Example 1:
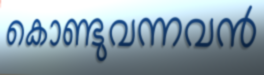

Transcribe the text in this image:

കൊണ്ടുവന്നവൻ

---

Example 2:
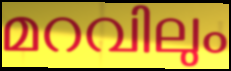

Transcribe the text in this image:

മറവിലും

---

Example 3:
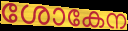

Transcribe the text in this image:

ശോകേന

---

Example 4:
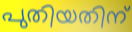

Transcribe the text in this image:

പുതിയതിന്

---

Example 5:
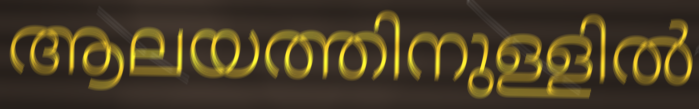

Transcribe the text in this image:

ആലയത്തിനുള്ളിൽ